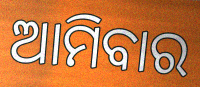
ଆମିବାର